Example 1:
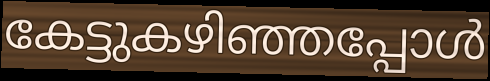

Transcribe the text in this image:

കേട്ടുകഴിഞ്ഞപ്പോൾ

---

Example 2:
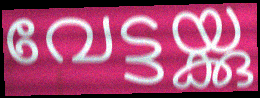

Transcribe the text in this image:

വേട്ടയ്ക്കു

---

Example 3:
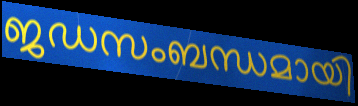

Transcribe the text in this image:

ജഡസംബന്ധമായി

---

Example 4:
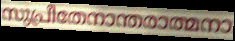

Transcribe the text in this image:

സുപ്രീതേനാന്തരാത്മനാ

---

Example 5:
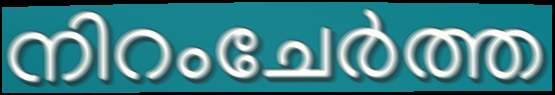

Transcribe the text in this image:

നിറംചേർത്ത